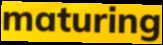
maturing